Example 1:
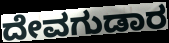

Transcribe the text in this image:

ದೇವಗುಡಾರ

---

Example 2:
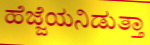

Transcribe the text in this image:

ಹೆಜ್ಜೆಯನಿಡುತ್ತಾ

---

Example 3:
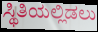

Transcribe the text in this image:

ಸ್ಥಿತಿಯಲ್ಲಿಡಲು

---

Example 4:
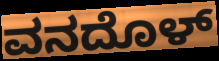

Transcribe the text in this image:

ವನದೊಳ್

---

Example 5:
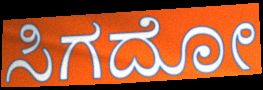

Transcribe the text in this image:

ಸಿಗದೋ